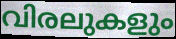
വിരലുകളും